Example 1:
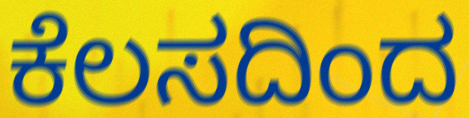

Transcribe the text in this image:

ಕೆಲಸದಿಂದ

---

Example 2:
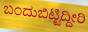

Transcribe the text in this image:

ಬಂದುಬಿಟ್ಟಿದ್ದೀರಿ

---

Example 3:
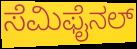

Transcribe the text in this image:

ಸೆಮಿಫೈನಲ್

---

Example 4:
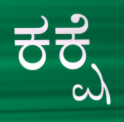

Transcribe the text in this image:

ಕಕ್ಷೆ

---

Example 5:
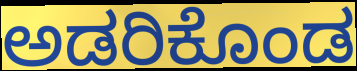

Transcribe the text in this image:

ಅಡರಿಕೊಂಡ